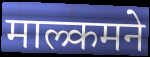
माल्कमने